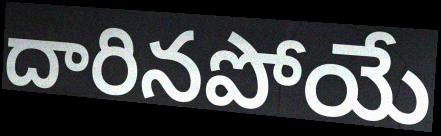
దారినపోయే